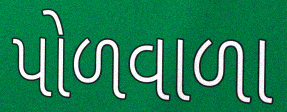
પોળવાળા